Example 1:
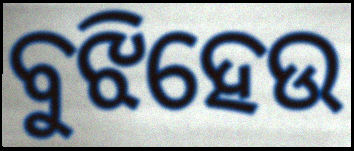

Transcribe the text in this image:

ବୁଝିହେଉ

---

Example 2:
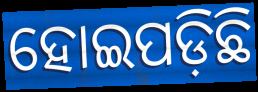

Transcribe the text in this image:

ହୋଇପଡ଼ିଛି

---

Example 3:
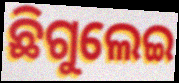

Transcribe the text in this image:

ଛିଗୁଲେଇ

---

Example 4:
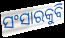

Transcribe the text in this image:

ସଂସାରକୁବି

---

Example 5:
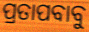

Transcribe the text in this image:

ପ୍ରତାପବାବୁ